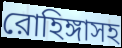
রোহিঙ্গাসহ